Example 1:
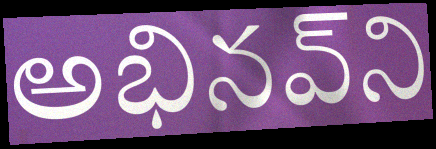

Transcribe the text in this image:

అభినవ్‌ని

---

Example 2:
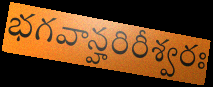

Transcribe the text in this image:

భగవాన్హరిరీశ్వరః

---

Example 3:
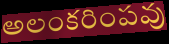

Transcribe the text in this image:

అలంకరింపవు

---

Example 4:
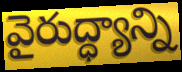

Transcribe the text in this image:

వైరుద్ధ్యాన్ని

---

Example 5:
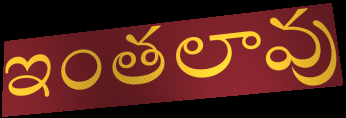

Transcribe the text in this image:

ఇంతలావు